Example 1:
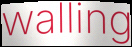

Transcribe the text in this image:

walling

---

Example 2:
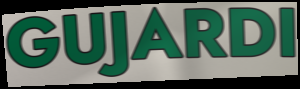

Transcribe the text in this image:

GUJARDI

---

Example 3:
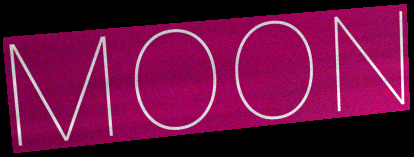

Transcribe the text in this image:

MOON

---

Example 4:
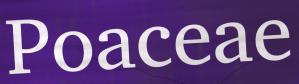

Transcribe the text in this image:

Poaceae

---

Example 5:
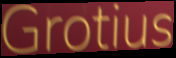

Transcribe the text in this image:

Grotius